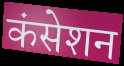
कंसेशन